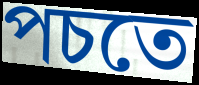
পচতে